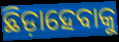
ଛିଡ଼ାହେବାକୁ